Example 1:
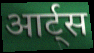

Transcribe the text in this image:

आर्ट्स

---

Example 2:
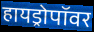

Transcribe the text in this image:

हायड्रोपॉवर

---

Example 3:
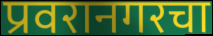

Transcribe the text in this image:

प्रवरानगरचा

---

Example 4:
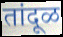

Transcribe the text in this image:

तांदूळ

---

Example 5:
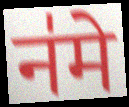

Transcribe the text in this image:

न॑मे